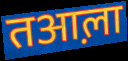
तआ़ला